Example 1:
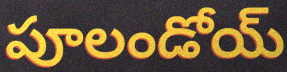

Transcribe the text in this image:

పూలండోయ్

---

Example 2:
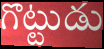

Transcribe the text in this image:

గొట్టుడు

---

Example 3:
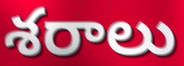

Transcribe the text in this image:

శరాలు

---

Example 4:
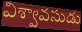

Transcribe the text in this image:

విశ్వావసుడు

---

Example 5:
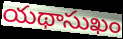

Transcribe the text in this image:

యథాసుఖం